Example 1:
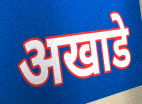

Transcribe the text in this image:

अखाडे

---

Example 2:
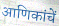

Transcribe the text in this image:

आणिकांचें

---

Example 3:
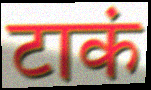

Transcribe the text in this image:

टाकं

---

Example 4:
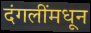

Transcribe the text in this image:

दंगलींमधून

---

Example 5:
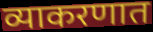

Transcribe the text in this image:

व्याकरणात